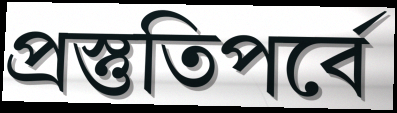
প্রস্তুতিপর্বে